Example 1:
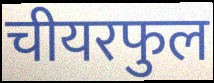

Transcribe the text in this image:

चीयरफुल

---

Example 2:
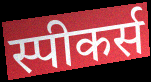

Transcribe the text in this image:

स्पीकर्स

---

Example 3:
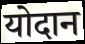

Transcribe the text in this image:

योदान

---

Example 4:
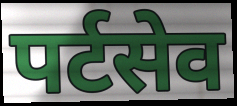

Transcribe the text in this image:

पर्टसेव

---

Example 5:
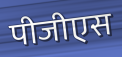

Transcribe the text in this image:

पीजीएस